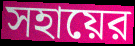
সহায়ের